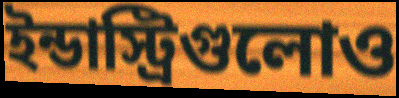
ইন্ডাস্ট্রিগুলোও